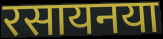
रसायनया